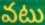
వటు